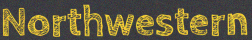
Northwestern